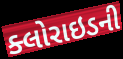
ક્લોરાઇડની